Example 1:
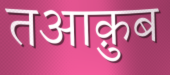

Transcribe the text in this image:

तआक़ुब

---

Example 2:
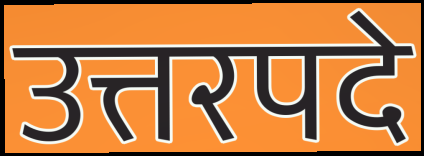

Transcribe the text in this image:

उत्तरपदे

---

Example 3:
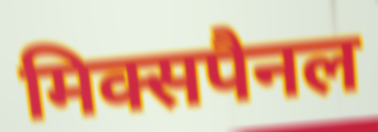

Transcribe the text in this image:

मिक्सपैनल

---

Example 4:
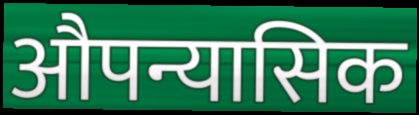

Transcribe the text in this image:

औपन्यासिक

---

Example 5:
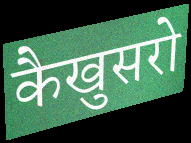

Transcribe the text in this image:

कैखुसरो